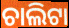
ଚାଲିଟା